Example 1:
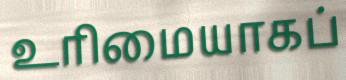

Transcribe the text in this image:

உரிமையாகப்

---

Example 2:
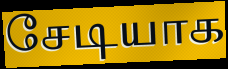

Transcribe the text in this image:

சேடியாக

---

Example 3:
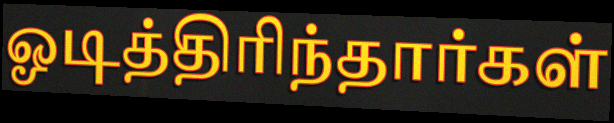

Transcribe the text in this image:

ஓடித்திரிந்தார்கள்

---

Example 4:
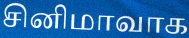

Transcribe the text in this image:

சினிமாவாக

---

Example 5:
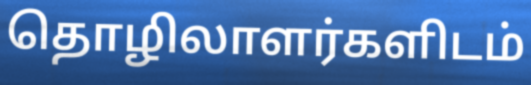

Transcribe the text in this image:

தொழிலாளர்களிடம்